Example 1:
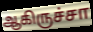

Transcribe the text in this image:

ஆகிருச்சா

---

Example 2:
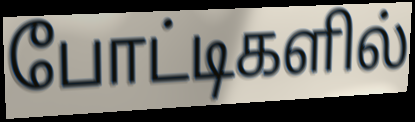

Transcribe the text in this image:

போட்டிகளில்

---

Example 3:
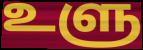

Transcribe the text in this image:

உளு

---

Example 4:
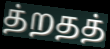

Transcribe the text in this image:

த்றதத்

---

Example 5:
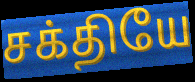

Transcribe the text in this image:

சக்தியே